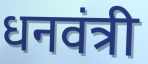
धनवंत्री